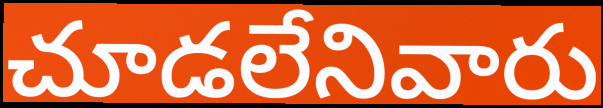
చూడలేనివారు